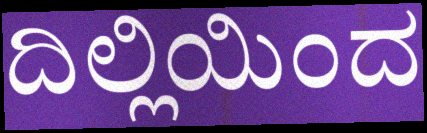
ದಿಲ್ಲಿಯಿಂದ